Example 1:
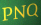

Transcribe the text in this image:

PNQ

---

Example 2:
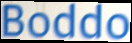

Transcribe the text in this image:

Boddo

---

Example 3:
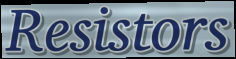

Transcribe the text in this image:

Resistors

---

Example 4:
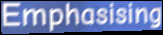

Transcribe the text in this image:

Emphasising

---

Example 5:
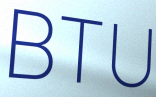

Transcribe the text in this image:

BTU